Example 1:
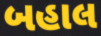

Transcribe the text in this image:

બહાલ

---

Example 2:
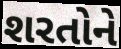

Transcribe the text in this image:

શરતોને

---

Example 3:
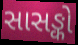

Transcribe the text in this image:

સાસઙ્કો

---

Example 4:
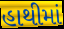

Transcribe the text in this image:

હાથીમાં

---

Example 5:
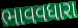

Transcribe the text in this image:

ભાવવધારા